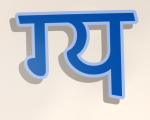
ग्य